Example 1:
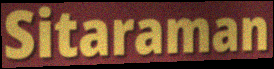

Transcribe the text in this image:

Sitaraman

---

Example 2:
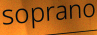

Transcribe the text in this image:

soprano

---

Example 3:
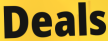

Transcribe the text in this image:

Deals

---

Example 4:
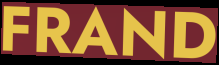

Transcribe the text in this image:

FRAND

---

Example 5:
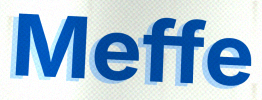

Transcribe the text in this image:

Meffe